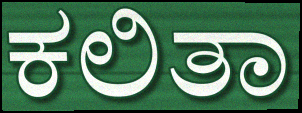
ಕಲಿತಾ